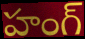
హంగ్